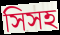
সিসহ